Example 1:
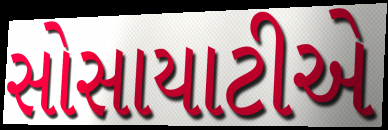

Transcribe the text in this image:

સોસાયાટીએ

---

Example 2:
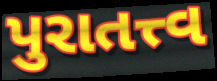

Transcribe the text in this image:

પુરાતત્ત્વ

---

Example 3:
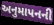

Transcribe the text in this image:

અનુમાપનની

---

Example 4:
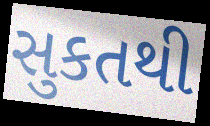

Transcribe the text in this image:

સુકતથી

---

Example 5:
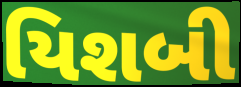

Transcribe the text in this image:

યિશબી